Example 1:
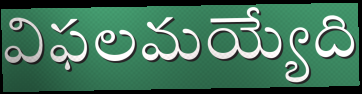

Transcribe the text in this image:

విఫలమయ్యేది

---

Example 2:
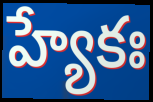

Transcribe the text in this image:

హ్యేకః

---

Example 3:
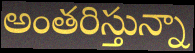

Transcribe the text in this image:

అంతరిస్తున్నా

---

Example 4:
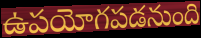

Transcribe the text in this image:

ఉపయోగపడనుంది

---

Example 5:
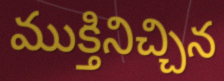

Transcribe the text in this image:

ముక్తినిచ్చిన